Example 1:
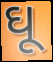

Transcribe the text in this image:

ઘૂ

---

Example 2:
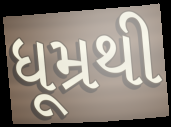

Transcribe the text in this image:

ધૂમ્રથી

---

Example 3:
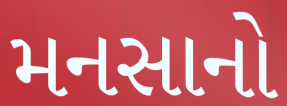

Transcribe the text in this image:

મનસાનો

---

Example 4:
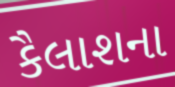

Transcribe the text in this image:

કૈલાશના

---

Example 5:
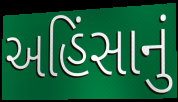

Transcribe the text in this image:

અહિંસાનું